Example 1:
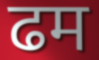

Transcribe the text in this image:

ढम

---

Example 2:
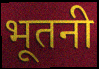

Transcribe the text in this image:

भूतनी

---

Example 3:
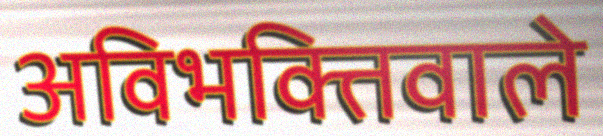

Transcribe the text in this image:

अविभक्तिवाले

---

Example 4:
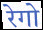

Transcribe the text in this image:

रेगो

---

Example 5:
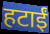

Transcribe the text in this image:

हटाईं